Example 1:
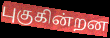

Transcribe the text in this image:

புகுகின்றன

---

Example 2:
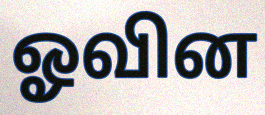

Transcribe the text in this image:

ஓவின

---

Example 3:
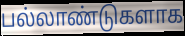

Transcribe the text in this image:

பல்லாண்டுகளாக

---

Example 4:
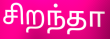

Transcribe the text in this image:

சிறந்தா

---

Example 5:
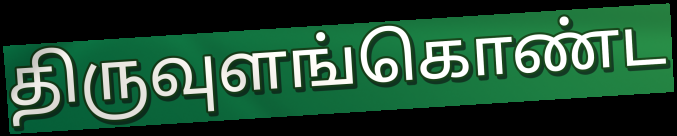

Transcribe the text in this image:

திருவுளங்கொண்ட